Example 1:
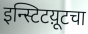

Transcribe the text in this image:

इन्स्टिटय़ूटचा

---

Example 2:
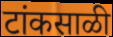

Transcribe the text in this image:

टांकसाळी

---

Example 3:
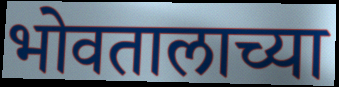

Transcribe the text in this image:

भोवतालाच्या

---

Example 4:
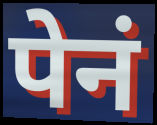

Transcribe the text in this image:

पेनं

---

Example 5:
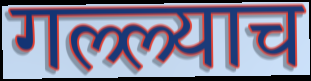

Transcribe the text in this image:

गल्ल्याच